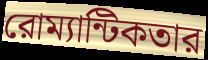
রোম্যান্টিকতার